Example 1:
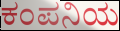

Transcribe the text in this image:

ಕಂಪನಿಯ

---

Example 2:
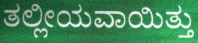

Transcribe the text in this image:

ತಲ್ಲೀಯವಾಯಿತ್ತು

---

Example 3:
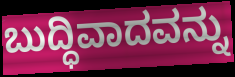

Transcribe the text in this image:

ಬುದ್ಧಿವಾದವನ್ನು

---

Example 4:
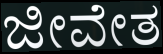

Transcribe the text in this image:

ಜೀವೇತ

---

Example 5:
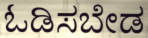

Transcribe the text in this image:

ಓಡಿಸಬೇಡ